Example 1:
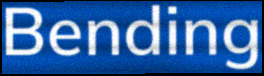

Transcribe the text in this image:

Bending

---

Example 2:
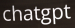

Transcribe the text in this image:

chatgpt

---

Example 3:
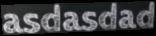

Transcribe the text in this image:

asdasdad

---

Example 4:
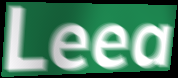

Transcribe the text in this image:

Leea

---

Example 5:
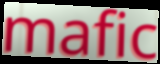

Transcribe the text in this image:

mafic